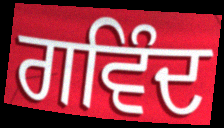
ਗਵਿੰਦ